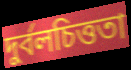
দুর্বলচিত্ততা